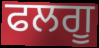
ਫਲਗੂ